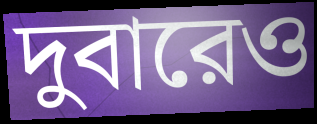
দুবারেও